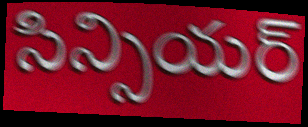
సిన్సియర్